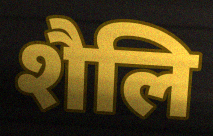
शैलि